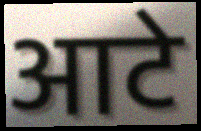
आटे